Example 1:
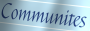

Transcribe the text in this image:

Communites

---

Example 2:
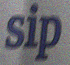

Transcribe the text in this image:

sip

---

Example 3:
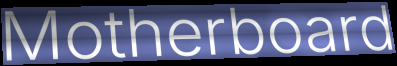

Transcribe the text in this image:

Motherboard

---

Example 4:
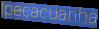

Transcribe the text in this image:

Ipecacuanha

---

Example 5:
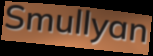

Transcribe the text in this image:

Smullyan